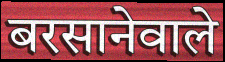
बरसानेवाले